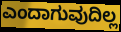
ಎಂದಾಗುವುದಿಲ್ಲ